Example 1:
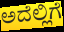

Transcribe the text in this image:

ಅದೆಲ್ಲಿಗೆ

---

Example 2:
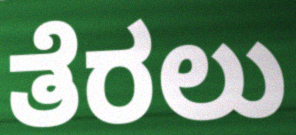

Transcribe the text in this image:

ತೆರಲು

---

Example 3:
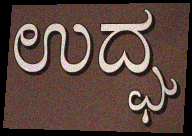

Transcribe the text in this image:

ಉದ್ಘ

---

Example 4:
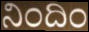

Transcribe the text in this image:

ನಿಂದಿಂ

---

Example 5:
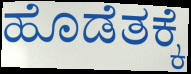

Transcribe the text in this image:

ಹೊಡೆತಕ್ಕೆ